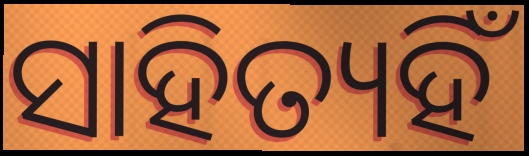
ସାହିତ୍ୟହିଁ